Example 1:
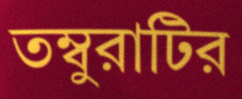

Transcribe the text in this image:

তম্বুরাটির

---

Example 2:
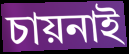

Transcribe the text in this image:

চায়নাই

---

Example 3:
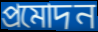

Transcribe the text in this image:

প্রমোদন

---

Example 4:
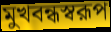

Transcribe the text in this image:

মুখবন্ধস্বরূপ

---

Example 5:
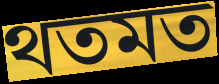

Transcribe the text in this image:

থতমত